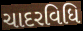
ચાદરવિધિ